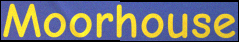
Moorhouse